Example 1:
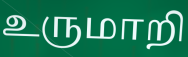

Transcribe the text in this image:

உருமாறி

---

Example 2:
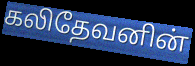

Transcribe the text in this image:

கலிதேவனின்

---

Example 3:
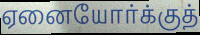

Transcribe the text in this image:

ஏனையோர்க்குத்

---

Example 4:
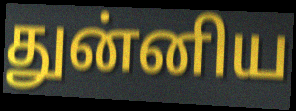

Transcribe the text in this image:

துன்னிய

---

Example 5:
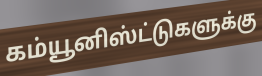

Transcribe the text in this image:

கம்யூனிஸ்ட்டுகளுக்கு